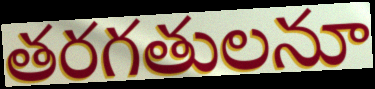
తరగతులనూ